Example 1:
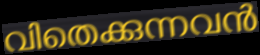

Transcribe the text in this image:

വിതെക്കുന്നവൻ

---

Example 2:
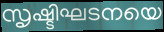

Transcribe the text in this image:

സൃഷ്ടിഘടനയെ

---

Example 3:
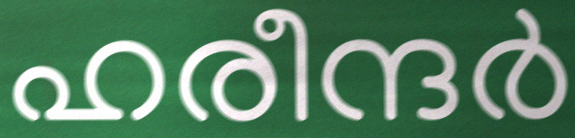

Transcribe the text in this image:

ഹരീന്ദർ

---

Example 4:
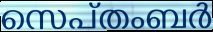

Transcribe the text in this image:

സെപ്‌തംബർ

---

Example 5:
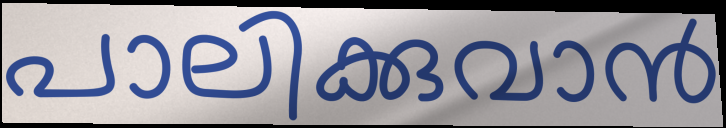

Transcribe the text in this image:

പാലിക്കുവാൻ